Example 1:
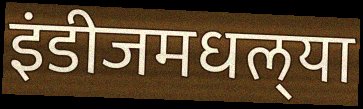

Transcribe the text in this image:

इंडीजमधल्या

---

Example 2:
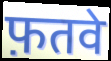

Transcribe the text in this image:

फ़तवे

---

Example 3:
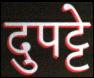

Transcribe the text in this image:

दुपट्टे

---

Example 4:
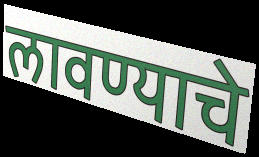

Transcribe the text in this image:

लावण्याचे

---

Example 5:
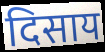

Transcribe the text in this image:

दिसाय